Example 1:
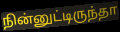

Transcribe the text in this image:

நின்னுட்டிருந்தா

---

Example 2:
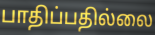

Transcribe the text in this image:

பாதிப்பதில்லை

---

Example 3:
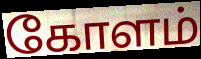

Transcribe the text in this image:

கோளம்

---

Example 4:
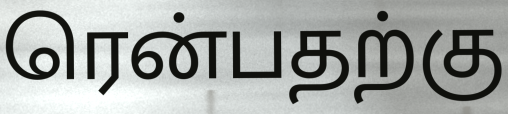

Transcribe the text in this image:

ரென்பதற்கு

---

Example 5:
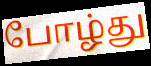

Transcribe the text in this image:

போழ்து